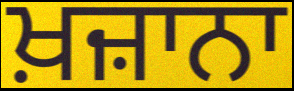
ਖ਼ਜ਼ਾਨਾ